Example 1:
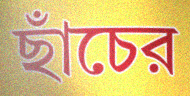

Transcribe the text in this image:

ছাঁচের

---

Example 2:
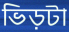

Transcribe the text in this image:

ভিড়টা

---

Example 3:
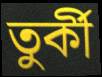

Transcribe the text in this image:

তুর্কী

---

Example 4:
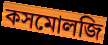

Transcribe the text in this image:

কসমোলজি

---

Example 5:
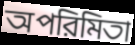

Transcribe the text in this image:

অপরিমিতা